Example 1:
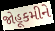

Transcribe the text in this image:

જોહૂકમીને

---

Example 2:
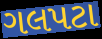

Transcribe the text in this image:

ગલપટા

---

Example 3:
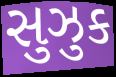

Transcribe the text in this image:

સુઝુક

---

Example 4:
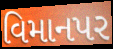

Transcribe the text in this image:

વિમાનપર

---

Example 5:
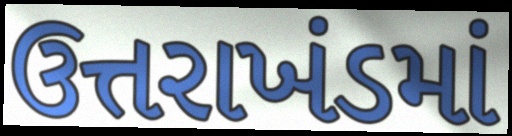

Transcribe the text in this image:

ઉત્તરાખંડમાં